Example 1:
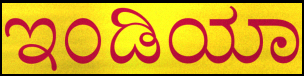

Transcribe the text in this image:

ಇಂಡಿಯಾ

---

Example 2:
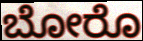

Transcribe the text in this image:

ಬೋರೊ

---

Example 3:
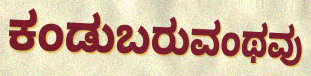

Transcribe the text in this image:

ಕಂಡುಬರುವಂಥವು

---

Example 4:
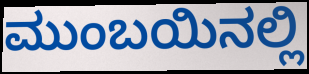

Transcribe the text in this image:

ಮುಂಬಯಿನಲ್ಲಿ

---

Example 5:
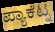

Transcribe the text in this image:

ಪ್ಯಾಕೆಟ್ನ